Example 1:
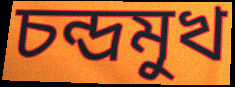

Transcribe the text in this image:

চন্দ্রমুখ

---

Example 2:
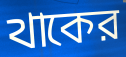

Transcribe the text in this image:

থাকের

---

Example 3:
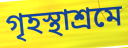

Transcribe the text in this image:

গৃহস্থাশ্রমে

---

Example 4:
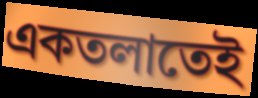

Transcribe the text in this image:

একতলাতেই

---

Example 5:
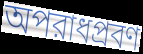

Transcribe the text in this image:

অপরাধপ্রবণ